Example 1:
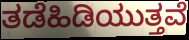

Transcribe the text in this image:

ತಡೆಹಿಡಿಯುತ್ತವೆ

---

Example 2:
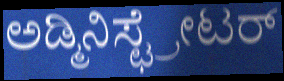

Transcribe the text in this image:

ಅಡ್ಮಿನಿಸ್ಟ್ರೇಟರ್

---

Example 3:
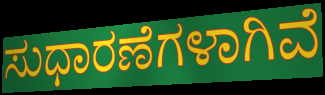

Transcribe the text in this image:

ಸುಧಾರಣೆಗಳಾಗಿವೆ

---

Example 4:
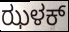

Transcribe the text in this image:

ಝಳಕ್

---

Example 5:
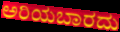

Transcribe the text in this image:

ಅರಿಯಬಾರದು